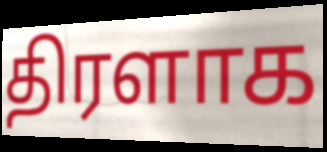
திரளாக